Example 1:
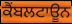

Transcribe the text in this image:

ਕੈਂਬਲਟਾਊਨ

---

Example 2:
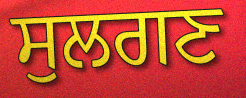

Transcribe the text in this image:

ਸੁਲਗਣ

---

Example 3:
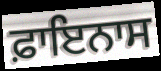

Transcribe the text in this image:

ਫ਼ਾਇਨਾਸ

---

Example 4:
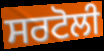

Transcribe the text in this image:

ਸਰਟੋਲੀ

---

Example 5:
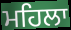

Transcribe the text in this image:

ਮਹਿਲਾ